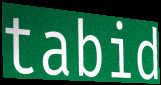
tabid